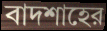
বাদশাহের